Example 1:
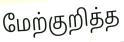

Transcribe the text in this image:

மேற்குறித்த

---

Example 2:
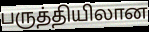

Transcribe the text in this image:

பருத்தியிலான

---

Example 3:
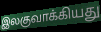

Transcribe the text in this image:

இலகுவாக்கியது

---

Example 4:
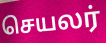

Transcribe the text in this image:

செயலர்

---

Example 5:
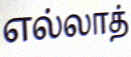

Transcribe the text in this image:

எல்லாத்